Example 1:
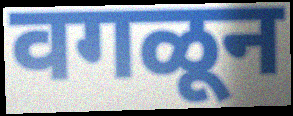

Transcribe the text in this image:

वगळून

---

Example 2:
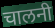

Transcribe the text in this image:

चालनी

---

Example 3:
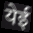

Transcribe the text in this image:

येई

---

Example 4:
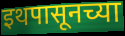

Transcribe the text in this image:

इथपासूनच्या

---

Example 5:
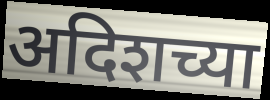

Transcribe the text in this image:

अदिशच्या